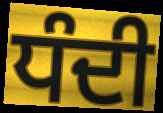
ਧੰਦੀ